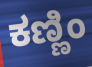
ಕಣ್ಣಿಂ